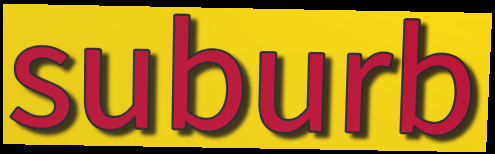
suburb